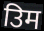
उिम